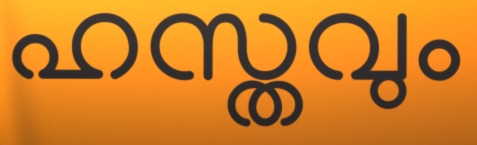
ഹസ്തവും